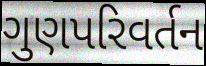
ગુણપરિવર્તન